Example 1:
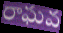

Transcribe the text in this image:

రాఘవ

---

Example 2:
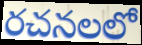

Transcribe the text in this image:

రచనలలో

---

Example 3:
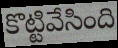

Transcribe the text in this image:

కొట్టివేసింది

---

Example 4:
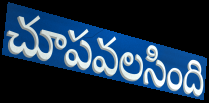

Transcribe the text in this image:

చూపవలసింది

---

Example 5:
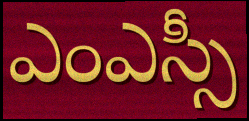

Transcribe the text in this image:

ఎంఎస్సీ